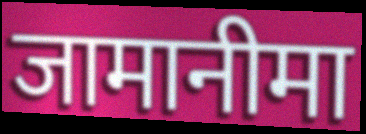
जामानीमा